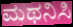
ಮಥನಿಸಿ